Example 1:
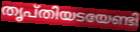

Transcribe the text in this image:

തൃപ്തിയടയേണ്ടി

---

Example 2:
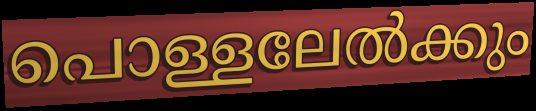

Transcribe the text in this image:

പൊള്ളലേൽക്കും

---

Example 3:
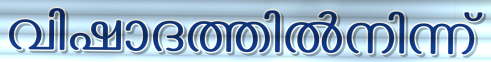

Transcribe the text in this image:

വിഷാദത്തിൽനിന്ന്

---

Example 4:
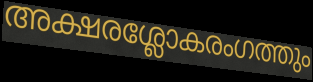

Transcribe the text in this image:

അക്ഷരശ്ലോകരംഗത്തും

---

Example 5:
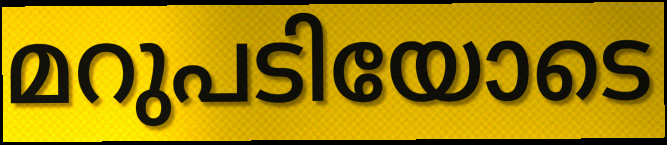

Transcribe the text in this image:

മറുപടിയോടെ